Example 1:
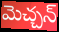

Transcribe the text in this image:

మెచ్చన్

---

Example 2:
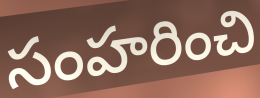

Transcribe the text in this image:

సంహరించి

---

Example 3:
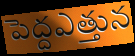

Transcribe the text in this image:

పెద్దఎత్తున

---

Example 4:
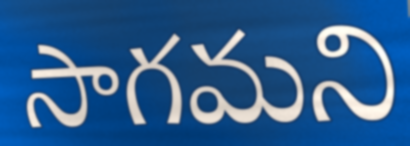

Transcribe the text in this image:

సాగమని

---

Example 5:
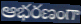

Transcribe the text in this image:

ఆభరణంగా